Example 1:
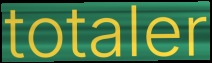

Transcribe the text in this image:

totaler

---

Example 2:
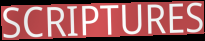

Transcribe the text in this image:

SCRIPTURES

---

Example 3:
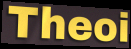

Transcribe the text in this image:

Theoi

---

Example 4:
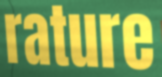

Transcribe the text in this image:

rature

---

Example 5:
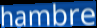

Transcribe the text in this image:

hambre